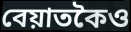
বেয়াতকৈও